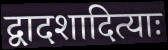
द्वादशादित्याः